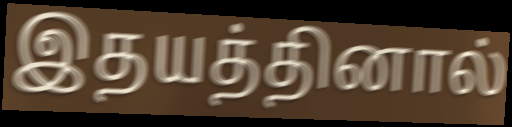
இதயத்தினால்